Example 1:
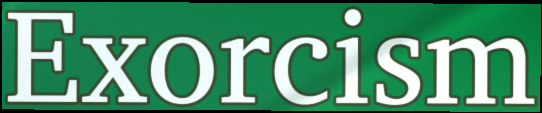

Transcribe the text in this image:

Exorcism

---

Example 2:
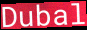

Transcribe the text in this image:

Dubal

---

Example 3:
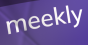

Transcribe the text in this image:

meekly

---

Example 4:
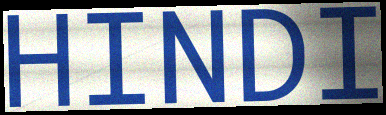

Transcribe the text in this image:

HINDI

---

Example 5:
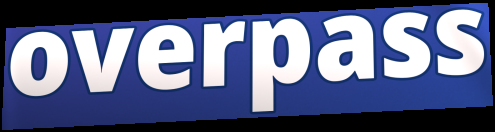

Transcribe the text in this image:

overpass